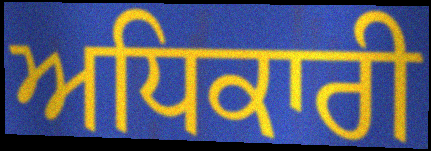
ਅਧਿਕਾਰੀ